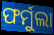
ଫର୍ମୁଲା